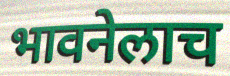
भावनेलाच